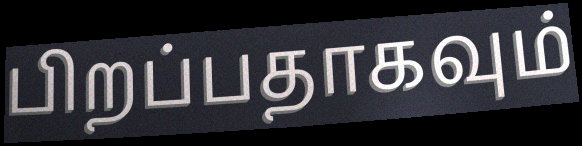
பிறப்பதாகவும்